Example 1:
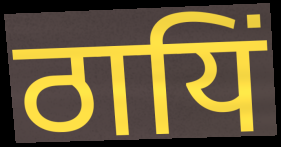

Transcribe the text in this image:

ठायिं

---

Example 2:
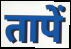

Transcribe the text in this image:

तापें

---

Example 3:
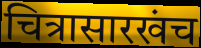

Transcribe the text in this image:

चित्रासारखंच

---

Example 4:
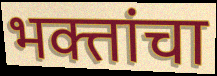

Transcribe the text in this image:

भक्तांचा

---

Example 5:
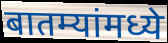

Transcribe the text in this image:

बातम्यांमध्ये